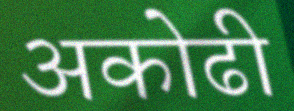
अकोढी